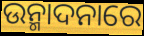
ଉନ୍ମାଦନାରେ